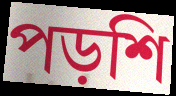
পড়শি